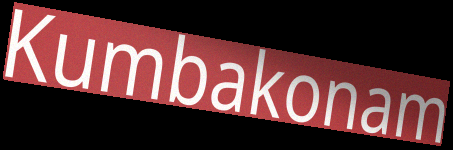
Kumbakonam